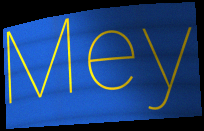
Mey